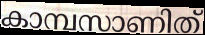
കാമ്പസാണിത്